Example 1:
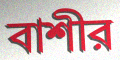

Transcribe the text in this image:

বাশীর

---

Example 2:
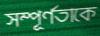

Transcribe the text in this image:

সম্পূর্ণতাকে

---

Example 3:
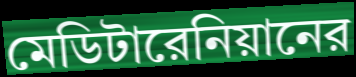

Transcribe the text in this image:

মেডিটারেনিয়ানের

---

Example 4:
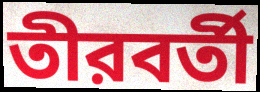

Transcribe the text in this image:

তীরবর্তী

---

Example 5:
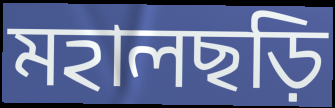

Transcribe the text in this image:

মহালছড়ি